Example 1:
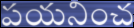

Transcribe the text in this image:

పయనించ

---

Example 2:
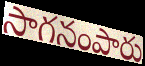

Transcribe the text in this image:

సాగనంపారు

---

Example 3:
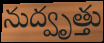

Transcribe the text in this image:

నుద్వృత్తు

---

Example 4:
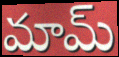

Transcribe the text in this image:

మామ్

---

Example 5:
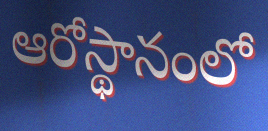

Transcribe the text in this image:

ఆరోస్థానంలో